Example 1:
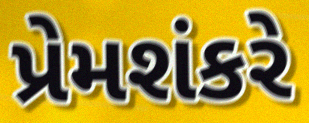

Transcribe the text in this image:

પ્રેમશંકરે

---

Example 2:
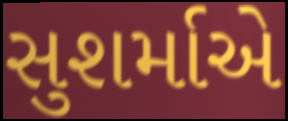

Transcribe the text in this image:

સુશર્માએ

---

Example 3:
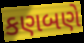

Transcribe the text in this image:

કણબણે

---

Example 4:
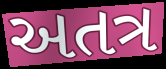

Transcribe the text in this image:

અતત્ર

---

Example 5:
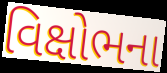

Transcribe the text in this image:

વિક્ષોભના